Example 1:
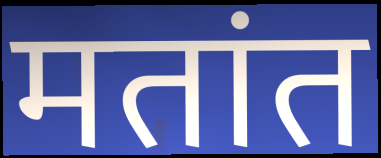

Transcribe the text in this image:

मतांत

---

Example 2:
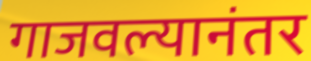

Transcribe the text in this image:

गाजवल्यानंतर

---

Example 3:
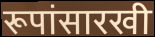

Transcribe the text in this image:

रूपांसारखी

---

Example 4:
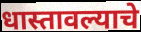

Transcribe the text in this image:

धास्तावल्याचे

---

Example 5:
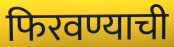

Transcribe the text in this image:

फिरवण्याची